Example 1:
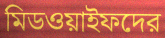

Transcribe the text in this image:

মিডওয়াইফদের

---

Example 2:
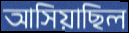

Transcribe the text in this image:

আসিয়াছিল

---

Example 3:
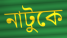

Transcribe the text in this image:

নাটুকে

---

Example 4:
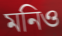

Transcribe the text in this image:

মনিও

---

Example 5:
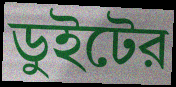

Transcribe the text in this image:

ডুইটের